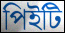
পিইটি